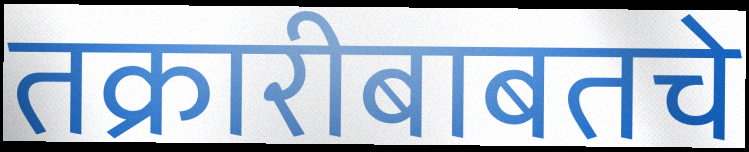
तक्रारीबाबतचे